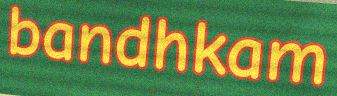
bandhkam